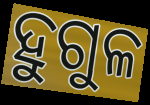
ହୁଗୁଳ